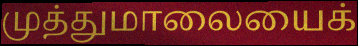
முத்துமாலையைக்